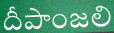
దీపాంజలి